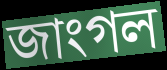
জাংগল